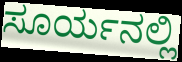
ಸೂರ್ಯನಲ್ಲಿ